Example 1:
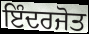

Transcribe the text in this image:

ਇੰਦਰਜੋਤ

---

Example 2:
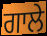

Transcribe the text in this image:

ਗਾਲੇ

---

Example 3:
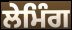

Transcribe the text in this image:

ਲੇਮਿੰਗ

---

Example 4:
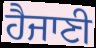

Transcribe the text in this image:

ਹੈਜਾਣੀ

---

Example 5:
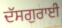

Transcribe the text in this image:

ਦੱਸਗੁਰਾਈ